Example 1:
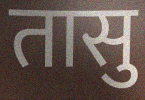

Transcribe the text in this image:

तासु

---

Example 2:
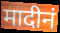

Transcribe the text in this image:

मादीनं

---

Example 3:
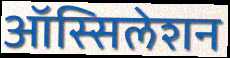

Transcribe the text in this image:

ऑस्सिलेशन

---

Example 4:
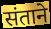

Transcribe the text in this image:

संताने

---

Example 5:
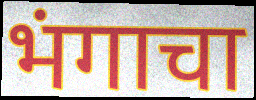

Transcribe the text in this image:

भंगाचा